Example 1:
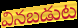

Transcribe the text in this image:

వినబడుట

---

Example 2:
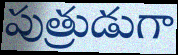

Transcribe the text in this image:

పుత్రుడుగా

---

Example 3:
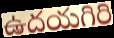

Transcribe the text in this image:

ఉదయగిరి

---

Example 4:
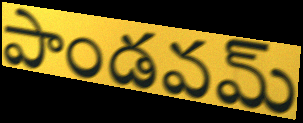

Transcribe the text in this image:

పాండవమ్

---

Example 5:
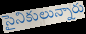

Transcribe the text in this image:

సైనికులున్నారు